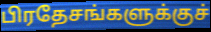
பிரதேசங்களுக்குச்